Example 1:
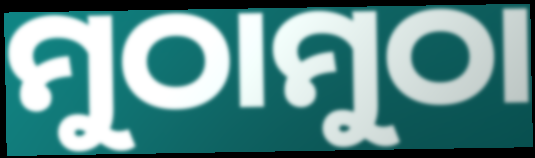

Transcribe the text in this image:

ମୁଠାମୁଠା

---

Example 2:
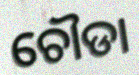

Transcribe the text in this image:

ଚୌଡା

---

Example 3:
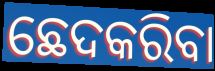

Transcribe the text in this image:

ଛେଦକରିବା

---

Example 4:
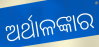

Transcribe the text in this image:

ଅର୍ଥାଳଙ୍କାର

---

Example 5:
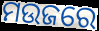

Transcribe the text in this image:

ମଉଜରେ